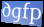
dgfp